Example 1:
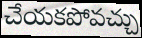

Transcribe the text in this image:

చేయకపోవచ్చు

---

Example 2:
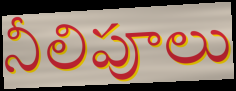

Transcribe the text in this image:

నీలిపూలు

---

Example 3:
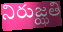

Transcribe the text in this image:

నిరుజ్ఝతి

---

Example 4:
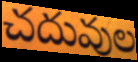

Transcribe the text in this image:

చదువుల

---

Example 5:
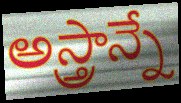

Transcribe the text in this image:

అస్త్రాన్నే